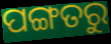
ପଙ୍ଗତରୁ